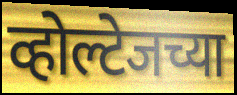
व्होल्टेजच्या